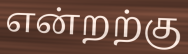
என்றற்கு